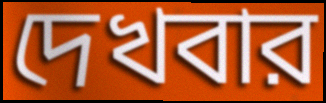
দেখবার